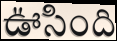
ఊసింది